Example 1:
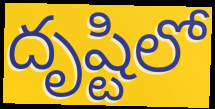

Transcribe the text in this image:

దృష్టిలో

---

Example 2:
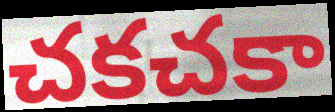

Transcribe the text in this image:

చకచకా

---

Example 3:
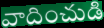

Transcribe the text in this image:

వాదించుడి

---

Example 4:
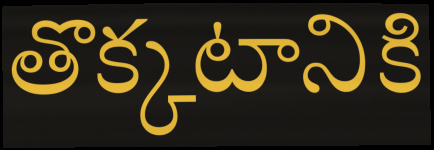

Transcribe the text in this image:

తొక్కటానికి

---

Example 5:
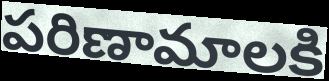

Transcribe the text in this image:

పరిణామాలకి